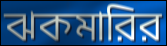
ঝকমারির